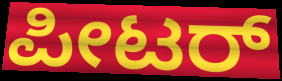
ಪೀಟರ್